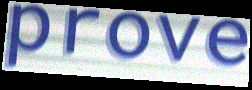
prove